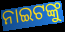
ନାଇଟଙ୍କୁ